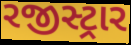
રજીસ્ટ્રાર